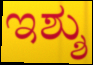
ಇಶ್ಶು